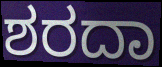
ಶರದಾ